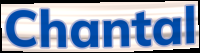
Chantal